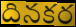
దినకర